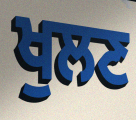
ਖੁਲਣ